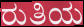
ರುತಿಯ